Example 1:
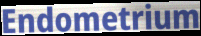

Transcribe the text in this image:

Endometrium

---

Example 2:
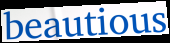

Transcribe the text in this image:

beautious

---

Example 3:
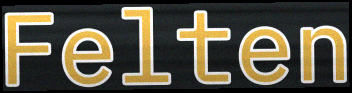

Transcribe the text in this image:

Felten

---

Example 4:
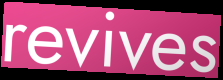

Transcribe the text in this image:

revives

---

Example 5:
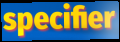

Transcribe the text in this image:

specifier